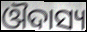
ଔଦାସ୍ୟ